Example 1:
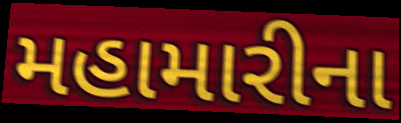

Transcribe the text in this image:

મહામારીના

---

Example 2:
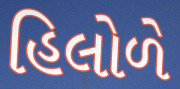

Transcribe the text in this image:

હિલોળે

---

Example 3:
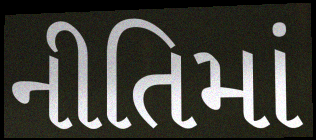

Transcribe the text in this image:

નીતિમાં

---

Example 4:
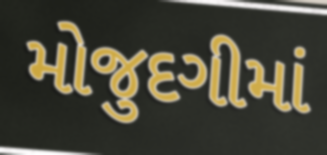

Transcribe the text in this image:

મોજુદગીમાં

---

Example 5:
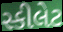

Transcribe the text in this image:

સ્કીલેટ